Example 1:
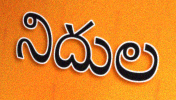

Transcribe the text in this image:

నిదుల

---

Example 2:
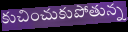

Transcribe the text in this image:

కుచించుకుపోతున్న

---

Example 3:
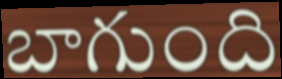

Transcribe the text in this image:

బాగుంది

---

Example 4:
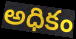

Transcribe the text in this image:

అధికం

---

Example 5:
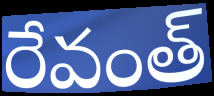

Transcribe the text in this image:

రేవంత్